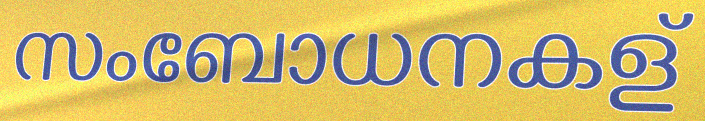
സംബോധനകള്